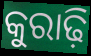
କୁରାଢ଼ି